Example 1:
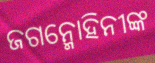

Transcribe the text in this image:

ଜଗନ୍ମୋହିନୀଙ୍କ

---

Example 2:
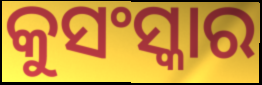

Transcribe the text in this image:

କୁସଂସ୍କାର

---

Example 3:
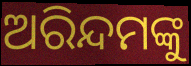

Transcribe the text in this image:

ଅରିନ୍ଦମଙ୍କୁ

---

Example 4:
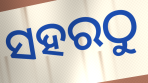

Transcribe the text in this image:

ସହରଠୁ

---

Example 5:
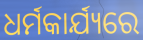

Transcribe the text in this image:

ଧର୍ମକାର୍ଯ୍ୟରେ